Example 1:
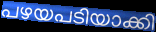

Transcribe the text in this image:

പഴയപടിയാക്കി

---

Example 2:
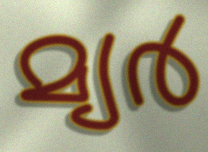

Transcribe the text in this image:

മ്യർ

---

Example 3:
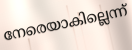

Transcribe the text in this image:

നേരെയാകില്ലെന്ന്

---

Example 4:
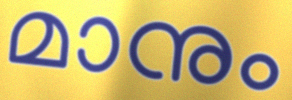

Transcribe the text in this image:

മാനും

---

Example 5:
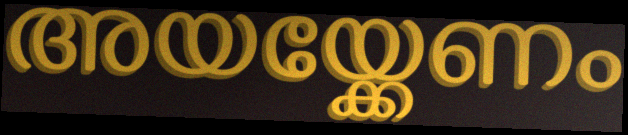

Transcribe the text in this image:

അയയ്ക്കേണം